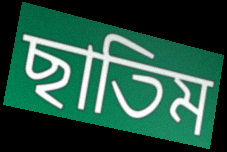
ছাতিম